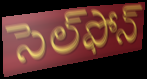
సెల్‌ఫోన్